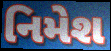
નિમેશ